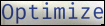
Optimize